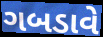
ગબડાવે